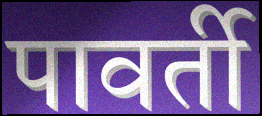
पावर्ती